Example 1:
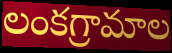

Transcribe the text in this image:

లంకగ్రామాల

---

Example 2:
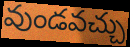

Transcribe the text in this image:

వుండవచ్చు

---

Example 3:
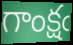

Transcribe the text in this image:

గాంక్షఁ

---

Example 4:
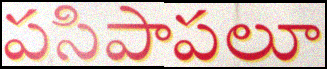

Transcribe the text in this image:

పసిపాపలూ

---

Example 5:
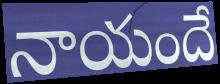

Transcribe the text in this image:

నాయందే